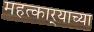
महत्कार्याच्या